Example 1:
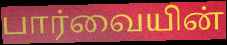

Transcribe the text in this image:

பார்வையின்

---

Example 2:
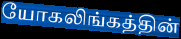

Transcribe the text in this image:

யோகலிங்கத்தின்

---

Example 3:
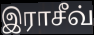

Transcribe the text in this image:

இராசீவ்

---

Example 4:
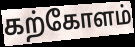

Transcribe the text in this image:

கற்கோளம்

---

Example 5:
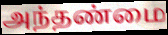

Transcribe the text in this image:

அந்தண்மை